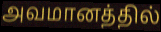
அவமானத்தில்